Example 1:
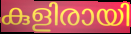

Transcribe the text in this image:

കുളിരായി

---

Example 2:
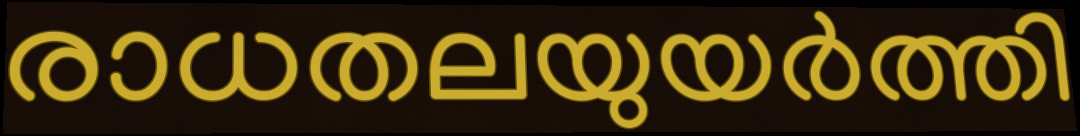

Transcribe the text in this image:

രാധതലയുയർത്തി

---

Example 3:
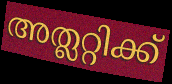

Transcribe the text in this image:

അത്ലറ്റിക്ക്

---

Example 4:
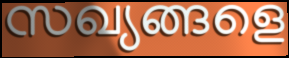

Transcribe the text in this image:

സഖ്യങ്ങളെ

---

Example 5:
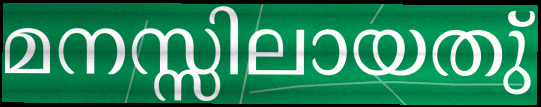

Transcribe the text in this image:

മനസ്സിലായതു്